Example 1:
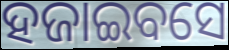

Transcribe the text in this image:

ହଜାଇବସେ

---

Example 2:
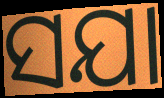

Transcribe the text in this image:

ସଯା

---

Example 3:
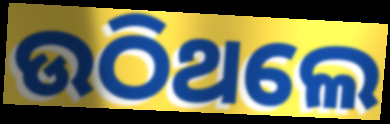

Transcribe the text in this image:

ଉଠିଥଲେ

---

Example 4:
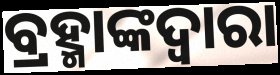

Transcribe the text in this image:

ବ୍ରହ୍ମାଙ୍କଦ୍ୱାରା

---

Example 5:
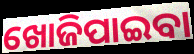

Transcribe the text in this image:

ଖୋଜିପାଇବା